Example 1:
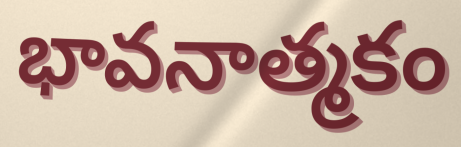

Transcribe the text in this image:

భావనాత్మకం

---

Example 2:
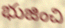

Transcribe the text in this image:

భుజించి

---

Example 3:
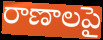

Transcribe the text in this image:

రాణాలపై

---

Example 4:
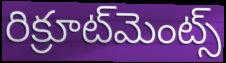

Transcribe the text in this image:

రిక్రూట్‌మెంట్స్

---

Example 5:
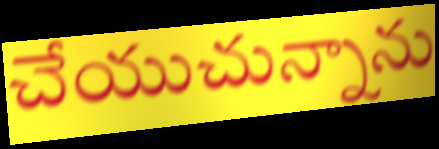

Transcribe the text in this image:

చేయుచున్నాను